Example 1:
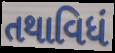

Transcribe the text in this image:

તથાવિધં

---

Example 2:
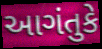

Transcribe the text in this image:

આગંતુકે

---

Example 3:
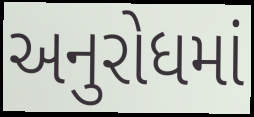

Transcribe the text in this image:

અનુરોધમાં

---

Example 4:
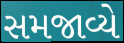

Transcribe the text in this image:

સમજાવ્યે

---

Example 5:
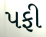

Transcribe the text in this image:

પફી